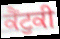
ਕੈਂਟੁਕੀ